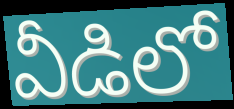
వీడిలో